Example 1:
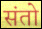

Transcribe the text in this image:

संतो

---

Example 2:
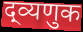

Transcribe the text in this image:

द्व्यणुक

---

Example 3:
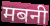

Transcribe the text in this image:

मबनी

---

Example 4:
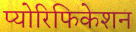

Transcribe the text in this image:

प्योरिफिकेशन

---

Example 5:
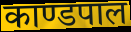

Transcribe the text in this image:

काण्डपाल